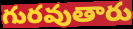
గురవుతారు